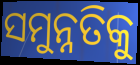
ସମୁନ୍ନତିକୁ